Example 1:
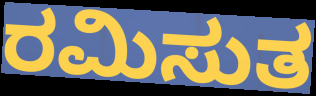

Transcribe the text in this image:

ರಮಿಸುತ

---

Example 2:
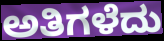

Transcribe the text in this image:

ಅತಿಗಳೆದು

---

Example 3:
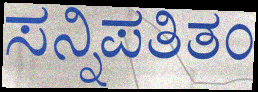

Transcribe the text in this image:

ಸನ್ನಿಪತಿತಂ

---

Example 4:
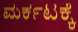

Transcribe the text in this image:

ಮರ್ಕಟಕ್ಕೆ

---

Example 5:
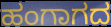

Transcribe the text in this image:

ಹಂಗಾಗದ